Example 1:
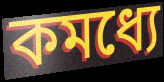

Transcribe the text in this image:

কমধ্যে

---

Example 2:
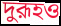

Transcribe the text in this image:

দুরূহও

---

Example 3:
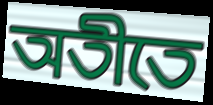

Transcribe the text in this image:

অতীতে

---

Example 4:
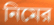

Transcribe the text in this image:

নিমের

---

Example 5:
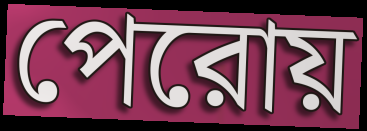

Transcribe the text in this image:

পেরোয়